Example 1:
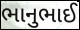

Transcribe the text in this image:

ભાનુભાઈ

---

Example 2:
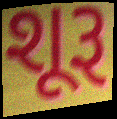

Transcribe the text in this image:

શૂરૂ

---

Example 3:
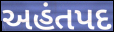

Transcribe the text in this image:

અહંતપદ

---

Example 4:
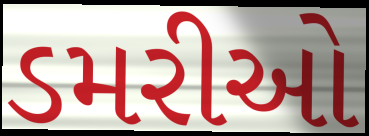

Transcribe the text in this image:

ડમરીઓ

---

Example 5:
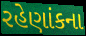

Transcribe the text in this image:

રહેણાંકના